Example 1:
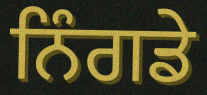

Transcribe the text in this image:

ਨਿੰਗਡੇ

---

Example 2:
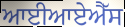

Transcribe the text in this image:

ਆਈਆਏਐੱਸ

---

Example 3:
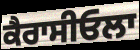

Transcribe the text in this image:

ਕੈਰਾਸੀਓਲਾ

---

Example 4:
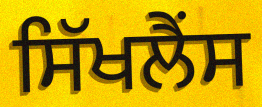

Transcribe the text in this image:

ਸਿੱਖਲੈਂਸ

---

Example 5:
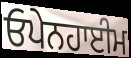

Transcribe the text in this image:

ਓਪੇਨਹਾਈਮ